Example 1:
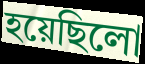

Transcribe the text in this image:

হয়েছিলো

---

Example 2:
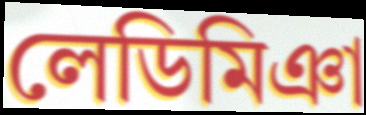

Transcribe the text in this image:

লেডিমিঞা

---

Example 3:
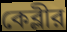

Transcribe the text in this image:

কেব্লীর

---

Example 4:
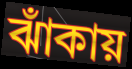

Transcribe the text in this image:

ঝাঁকায়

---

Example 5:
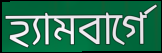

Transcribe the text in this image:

হ্যামবার্গে